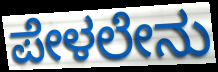
ಪೇಳಲೇನು